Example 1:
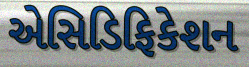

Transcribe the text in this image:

એસિડિફિકેશન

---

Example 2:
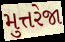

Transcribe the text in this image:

મુત્તરેજા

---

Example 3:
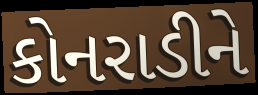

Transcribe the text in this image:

કોનરાડીને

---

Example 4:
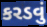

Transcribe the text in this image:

કરડવું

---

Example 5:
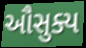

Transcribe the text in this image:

ઔસુક્ય